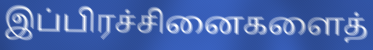
இப்பிரச்சினைகளைத்